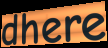
dhere